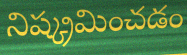
నిష్క్రమించడం